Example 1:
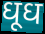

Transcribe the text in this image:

धूध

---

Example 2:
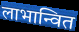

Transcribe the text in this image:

लाभान्वित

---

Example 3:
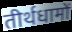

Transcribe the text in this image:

तीर्थधामों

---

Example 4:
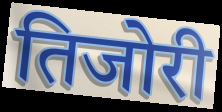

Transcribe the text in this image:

तिजोरी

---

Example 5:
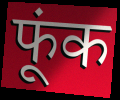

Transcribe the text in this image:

फूंक